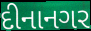
દીનાનગર